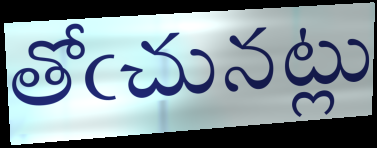
తోఁచునట్లు